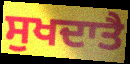
ਸੁਖਦਾਤੈ